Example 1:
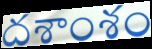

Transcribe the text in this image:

దశాంశం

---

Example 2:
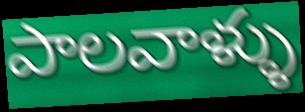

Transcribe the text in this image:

పాలవాళ్ళు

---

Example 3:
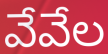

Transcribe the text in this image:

వేవేల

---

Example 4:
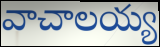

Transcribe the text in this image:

వాచాలయ్య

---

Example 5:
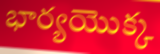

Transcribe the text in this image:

భార్యయొక్క